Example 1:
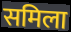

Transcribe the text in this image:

समिला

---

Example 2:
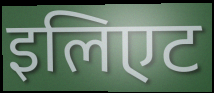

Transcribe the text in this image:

इलिएट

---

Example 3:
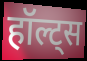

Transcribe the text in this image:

हॉल्ट्स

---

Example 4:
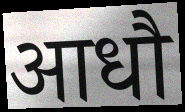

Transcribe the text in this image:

आधौ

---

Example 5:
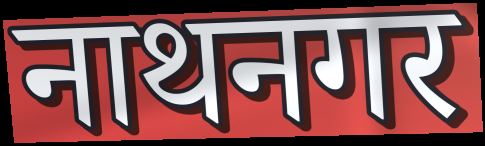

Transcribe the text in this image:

नाथनगर